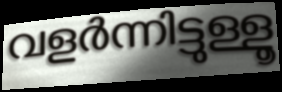
വളർന്നിട്ടുള്ളൂ